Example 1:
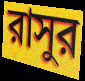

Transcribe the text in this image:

রাসুর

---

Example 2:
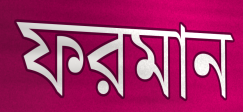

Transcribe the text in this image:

ফরমান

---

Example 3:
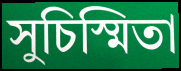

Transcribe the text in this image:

সুচিস্মিতা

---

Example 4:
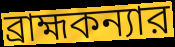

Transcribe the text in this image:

ব্রাহ্মকন্যার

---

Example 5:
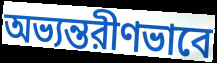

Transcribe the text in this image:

অভ্যন্তরীণভাবে